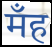
मँह